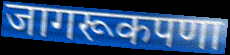
जागरूकपणा